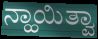
ನ್ಹಾಯಿತ್ವಾ